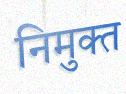
निमुक्त